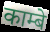
काम्बे